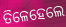
ତିଳେହେଲେ